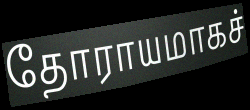
தோராயமாகச்